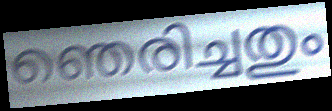
ഞെരിച്ചതും